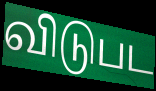
விடுபட